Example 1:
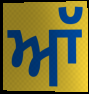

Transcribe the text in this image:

ਆੱ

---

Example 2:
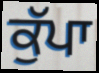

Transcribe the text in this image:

ਕੁੱਪਾ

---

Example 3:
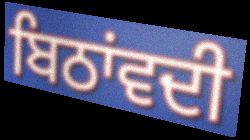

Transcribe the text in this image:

ਬਿਠਾਂਵਦੀ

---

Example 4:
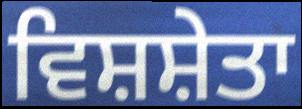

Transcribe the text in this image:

ਵਿਸ਼ਸ਼ੇਤਾ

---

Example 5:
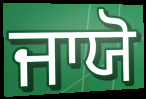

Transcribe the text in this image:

ਜਾਯੋ